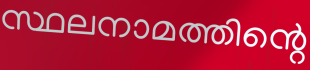
സ്ഥലനാമത്തിന്റെ